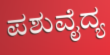
ಪಶುವೈದ್ಯ